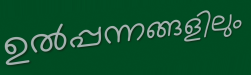
ഉൽപ്പന്നങ്ങളിലും